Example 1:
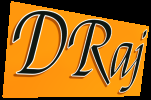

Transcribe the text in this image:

DRaj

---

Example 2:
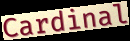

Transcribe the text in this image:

Cardinal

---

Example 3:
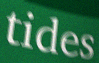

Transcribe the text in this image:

tides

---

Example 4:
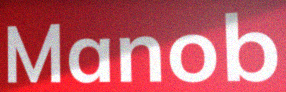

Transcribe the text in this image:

Manob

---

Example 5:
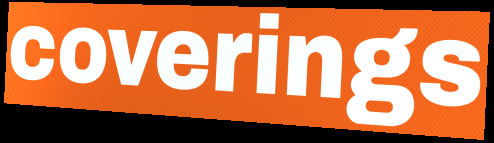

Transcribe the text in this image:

coverings